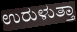
ಉರುಳುತ್ತಾ